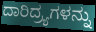
ದಾರಿದ್ರ್ಯಗಳನ್ನು